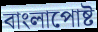
বাংলাপোষ্ট